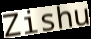
Zishu